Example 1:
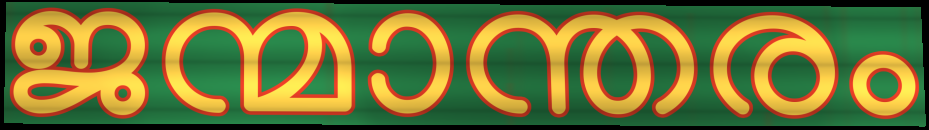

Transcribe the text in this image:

ജന്മാന്തരം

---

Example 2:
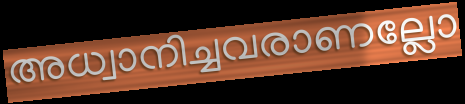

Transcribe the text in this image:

അധ്വാനിച്ചവരാണല്ലോ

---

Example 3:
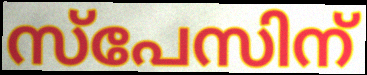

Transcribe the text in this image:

സ്പേസിന്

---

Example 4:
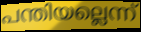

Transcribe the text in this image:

പന്തിയല്ലെന്ന്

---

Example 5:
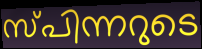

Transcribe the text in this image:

സ്പിന്നറുടെ